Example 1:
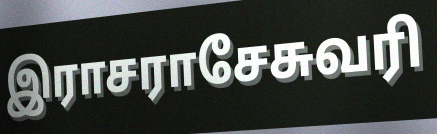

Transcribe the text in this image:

இராசராசேசுவரி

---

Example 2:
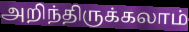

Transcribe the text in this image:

அறிந்திருக்கலாம்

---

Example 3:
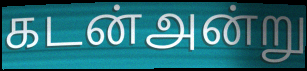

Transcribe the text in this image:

கடன்அன்று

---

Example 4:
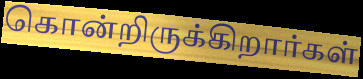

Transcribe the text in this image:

கொன்றிருக்கிறார்கள்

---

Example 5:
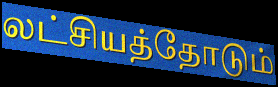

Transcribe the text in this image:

லட்சியத்தோடும்